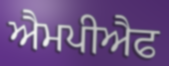
ਐਮਪੀਐਫ